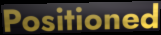
Positioned